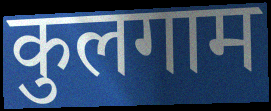
कुलगाम